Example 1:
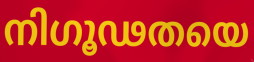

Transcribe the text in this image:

നിഗൂഢതയെ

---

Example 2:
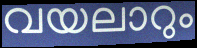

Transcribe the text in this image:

വയലാറും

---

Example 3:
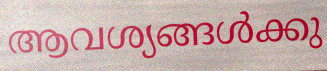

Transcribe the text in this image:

ആവശ്യങ്ങൾക്കു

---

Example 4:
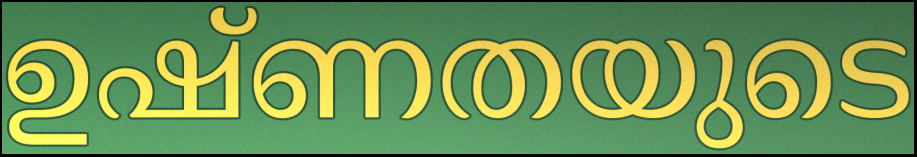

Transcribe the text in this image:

ഉഷ്ണതയുടെ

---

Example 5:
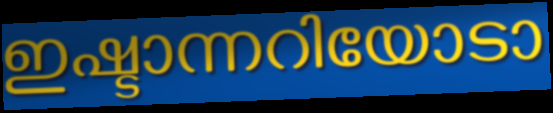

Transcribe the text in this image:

ഇഷ്ടാന്നറിയോടാ